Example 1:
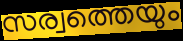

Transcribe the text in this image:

സര്വത്തെയും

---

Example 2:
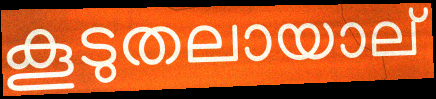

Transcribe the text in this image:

കൂടുതലായാല്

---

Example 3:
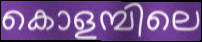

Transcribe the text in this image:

കൊളമ്പിലെ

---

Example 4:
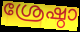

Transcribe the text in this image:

ശ്രേഷ്ഠാ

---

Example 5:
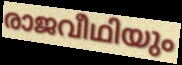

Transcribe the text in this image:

രാജവീഥിയും